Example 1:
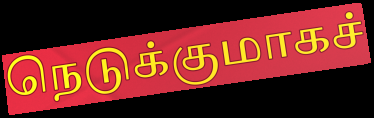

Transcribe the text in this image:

நெடுக்குமாகச்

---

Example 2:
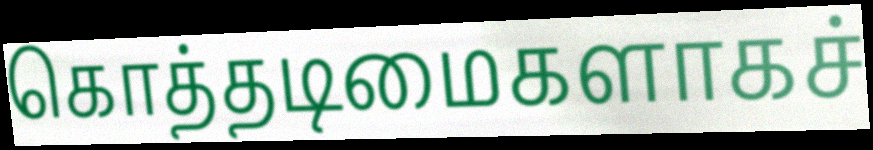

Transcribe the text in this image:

கொத்தடிமைகளாகச்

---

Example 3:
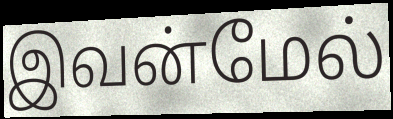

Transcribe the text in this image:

இவன்மேல்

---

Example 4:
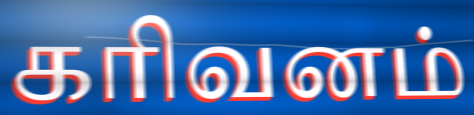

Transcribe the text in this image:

கரிவனம்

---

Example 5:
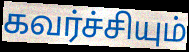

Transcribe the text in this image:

கவர்ச்சியும்